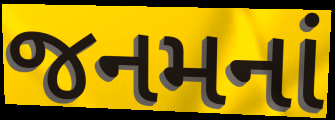
જનમનાં